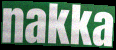
nakka